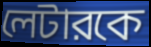
লেটারকে